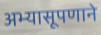
अभ्यासूपणाने